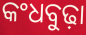
କଂଧବୁଢ଼ା